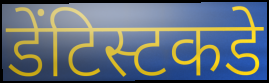
डेंटिस्टकडे